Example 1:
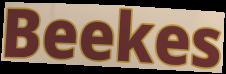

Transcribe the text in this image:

Beekes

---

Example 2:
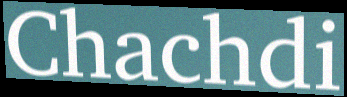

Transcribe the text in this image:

Chachdi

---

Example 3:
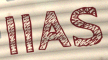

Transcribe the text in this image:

IIAS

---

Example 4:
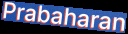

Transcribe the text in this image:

Prabaharan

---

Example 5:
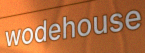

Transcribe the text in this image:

wodehouse